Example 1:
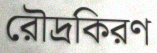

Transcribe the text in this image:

রৌদ্রকিরণ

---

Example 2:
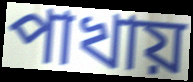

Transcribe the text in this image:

পাখায়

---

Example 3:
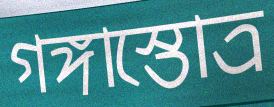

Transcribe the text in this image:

গঙ্গাস্তোত্র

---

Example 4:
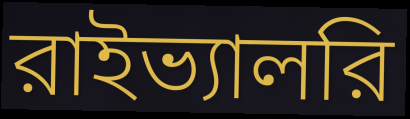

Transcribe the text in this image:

রাইভ্যালরি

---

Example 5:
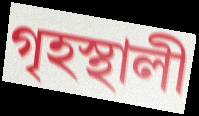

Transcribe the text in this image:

গৃহস্থালী